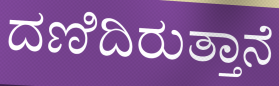
ದಣಿದಿರುತ್ತಾನೆ